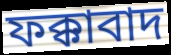
ফক্কাবাদ